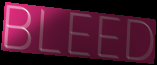
BLEED